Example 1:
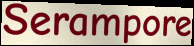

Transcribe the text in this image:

Serampore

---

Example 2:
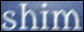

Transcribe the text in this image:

shim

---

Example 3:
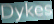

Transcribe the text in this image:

Dykes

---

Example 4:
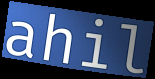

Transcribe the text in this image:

ahil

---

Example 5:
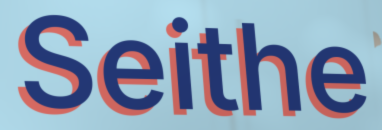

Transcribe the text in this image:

Seithe